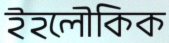
ইহলৌকিক